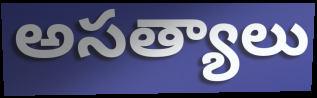
అసత్యాలు